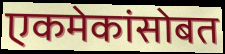
एकमेकांसोबत